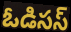
ఓడిసస్